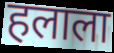
हलाला